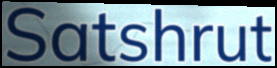
Satshrut